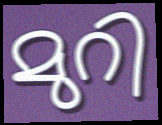
മുറി